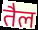
तैल